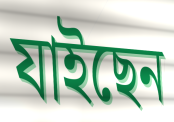
যাইছেন